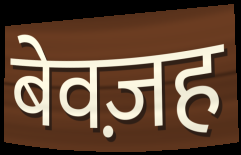
बेवज़ह